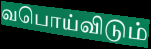
வபொய்விடும்